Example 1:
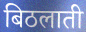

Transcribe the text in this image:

बिठलाती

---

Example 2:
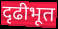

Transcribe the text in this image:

दृढीभूत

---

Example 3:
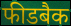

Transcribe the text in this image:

फीडबैक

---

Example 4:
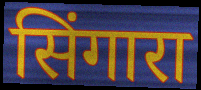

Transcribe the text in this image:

सिंगारा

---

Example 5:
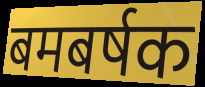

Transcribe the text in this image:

बमबर्षक